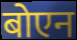
बोएन